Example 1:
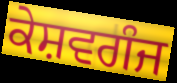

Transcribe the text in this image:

ਕੇਸ਼ਵਗੰਜ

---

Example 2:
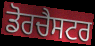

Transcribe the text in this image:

ਡੋਰਚੈਸਟਰ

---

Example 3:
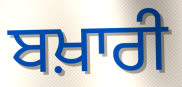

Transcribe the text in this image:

ਬਖ਼ਾਰੀ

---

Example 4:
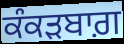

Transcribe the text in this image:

ਕੰਕੜਬਾਗ਼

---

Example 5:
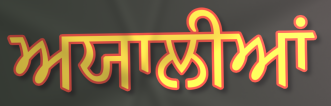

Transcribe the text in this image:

ਅਯਾਲੀਆਂ